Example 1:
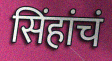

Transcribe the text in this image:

सिंहांचं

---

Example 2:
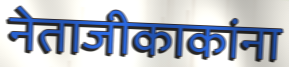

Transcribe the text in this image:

नेताजीकाकांना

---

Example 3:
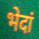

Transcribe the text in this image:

भेदां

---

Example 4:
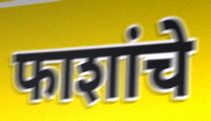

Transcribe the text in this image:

फाशांचे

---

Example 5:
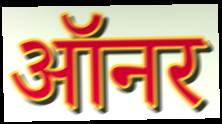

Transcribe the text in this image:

ऑनर